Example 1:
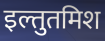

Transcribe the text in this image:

इल्तुतमिश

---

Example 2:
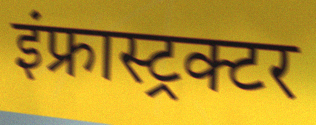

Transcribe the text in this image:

इंफ्रास्ट्रक्टर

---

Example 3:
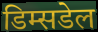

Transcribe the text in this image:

डिम्सडेल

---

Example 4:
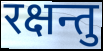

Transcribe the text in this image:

रक्षन्तु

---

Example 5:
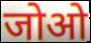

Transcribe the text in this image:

जोओ